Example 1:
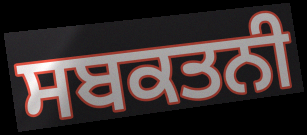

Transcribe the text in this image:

ਸਬਕਤਨੀ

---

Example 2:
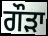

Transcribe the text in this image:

ਗੌੜਾ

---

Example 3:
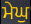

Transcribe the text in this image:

ਮੇਘੁ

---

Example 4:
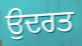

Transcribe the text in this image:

ਉਦਰਤ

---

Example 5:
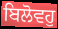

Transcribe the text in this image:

ਬਿਲੋਵਹੁ